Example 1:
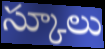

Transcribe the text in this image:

స్కూలు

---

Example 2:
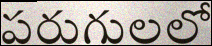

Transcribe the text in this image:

పరుగులలో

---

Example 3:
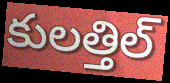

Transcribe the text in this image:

కులత్తిల్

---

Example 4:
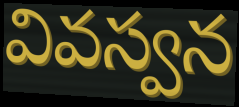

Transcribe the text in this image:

వివస్వన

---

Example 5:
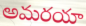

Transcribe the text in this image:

అమరయా